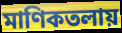
মাণিকতলায়